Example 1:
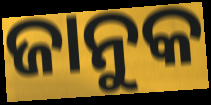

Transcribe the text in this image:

ଜାନୁକ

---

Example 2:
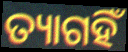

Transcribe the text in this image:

ତ୍ୟାଗହିଁ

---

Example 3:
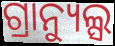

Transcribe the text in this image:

ଗ୍ରାନ୍ୟୁଲ୍ସ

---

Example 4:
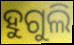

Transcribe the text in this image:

ହୁଗୁଲି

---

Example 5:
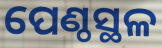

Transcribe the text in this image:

ପେଣ୍ଠସ୍ଥଳ